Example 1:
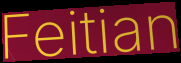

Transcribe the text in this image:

Feitian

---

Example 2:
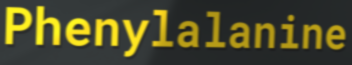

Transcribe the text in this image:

Phenylalanine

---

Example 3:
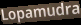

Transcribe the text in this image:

Lopamudra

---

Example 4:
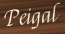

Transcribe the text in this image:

Peigal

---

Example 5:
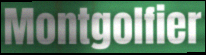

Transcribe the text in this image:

Montgolfier